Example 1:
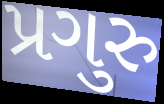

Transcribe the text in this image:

પ્રગુરુ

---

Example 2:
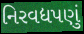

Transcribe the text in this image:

નિરવદ્યપણું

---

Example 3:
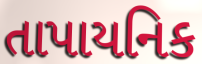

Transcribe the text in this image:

તાપાયનિક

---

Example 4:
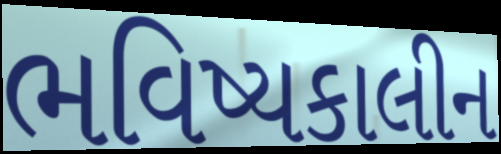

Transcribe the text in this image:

ભવિષ્યકાલીન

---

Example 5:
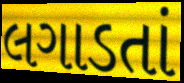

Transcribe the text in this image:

લગાડતાં